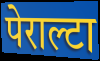
पेराल्टा